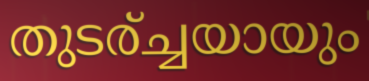
തുടര്ച്ചയായും